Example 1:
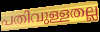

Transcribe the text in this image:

പതിവുള്ളതല്ല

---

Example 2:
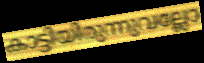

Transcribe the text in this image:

കാട്ടിയിരുന്നുവല്ലോ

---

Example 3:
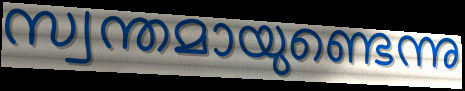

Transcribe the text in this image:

സ്വന്തമായുണ്ടെന്നു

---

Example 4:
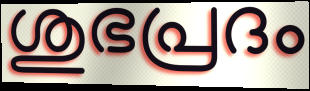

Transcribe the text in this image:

ശുഭപ്രദം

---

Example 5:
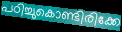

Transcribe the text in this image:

പഠിച്ചുകൊണ്ടിരിക്കേ